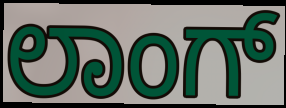
ಲಾಂಗ್